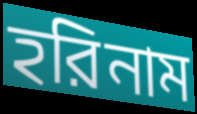
হরিনাম